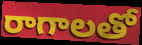
రాగాలతో